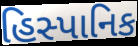
હિસ્પાનિક